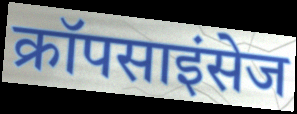
क्रॉपसाइंसेज